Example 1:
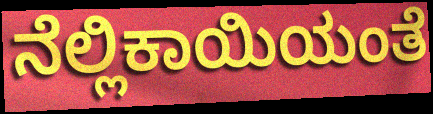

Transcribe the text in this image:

ನೆಲ್ಲಿಕಾಯಿಯಂತೆ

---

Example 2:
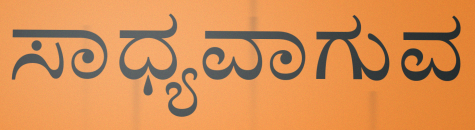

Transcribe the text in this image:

ಸಾಧ್ಯವಾಗುವ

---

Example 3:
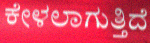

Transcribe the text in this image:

ಕೇಳಲಾಗುತ್ತಿದೆ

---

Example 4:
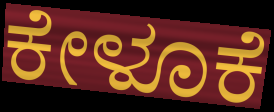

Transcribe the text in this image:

ಕೇಳೂಕೆ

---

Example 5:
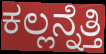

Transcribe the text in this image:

ಕಲ್ಲನ್ನೆತ್ತಿ